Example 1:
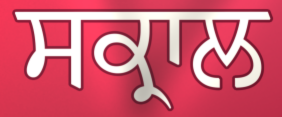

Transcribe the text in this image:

ਸਕ੍ਰਾਲ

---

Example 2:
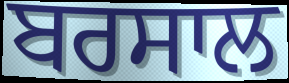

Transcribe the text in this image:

ਬਰਸਾਲ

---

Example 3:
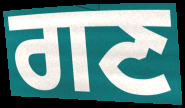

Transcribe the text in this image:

ਗਣ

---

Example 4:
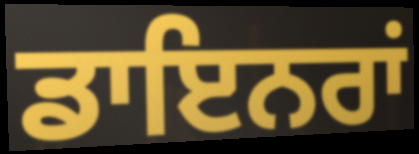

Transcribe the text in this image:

ਡਾਇਨਰਾਂ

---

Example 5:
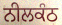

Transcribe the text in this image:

ਨੀਲਕੰਠ